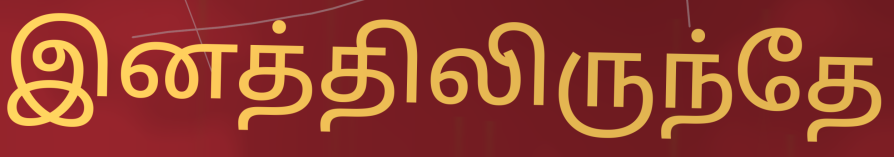
இனத்திலிருந்தே